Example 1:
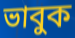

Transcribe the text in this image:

ভাবুক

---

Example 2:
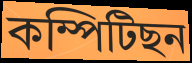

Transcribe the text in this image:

কম্পিটিছন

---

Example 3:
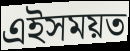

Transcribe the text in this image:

এইসময়ত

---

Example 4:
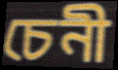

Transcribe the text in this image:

চেনী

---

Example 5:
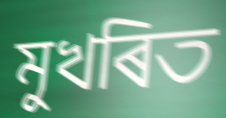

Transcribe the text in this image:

মুখৰিত